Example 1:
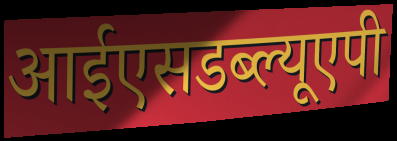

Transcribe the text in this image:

आईएसडब्ल्यूएपी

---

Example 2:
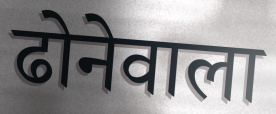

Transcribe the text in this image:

ढोनेवाला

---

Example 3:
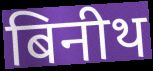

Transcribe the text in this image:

बिनीथ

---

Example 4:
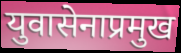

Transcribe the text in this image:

युवासेनाप्रमुख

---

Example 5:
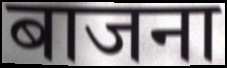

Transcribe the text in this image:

बाजना